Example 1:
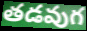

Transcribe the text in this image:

తడవుగ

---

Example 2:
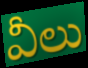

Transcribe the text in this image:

వీలు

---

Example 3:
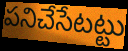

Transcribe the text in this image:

పనిచేసేటట్టు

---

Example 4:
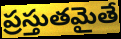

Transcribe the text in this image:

ప్రస్తుతమైతే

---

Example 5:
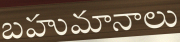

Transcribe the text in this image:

బహుమానాలు